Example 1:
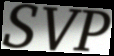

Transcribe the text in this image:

SVP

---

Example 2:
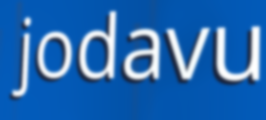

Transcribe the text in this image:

jodavu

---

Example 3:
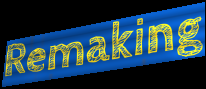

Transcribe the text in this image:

Remaking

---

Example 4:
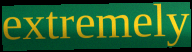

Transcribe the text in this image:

extremely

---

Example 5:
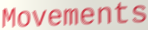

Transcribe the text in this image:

Movements